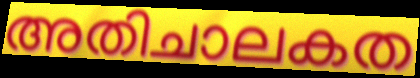
അതിചാലകത